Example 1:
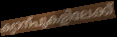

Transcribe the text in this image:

ക്യാന്പുകളിലേക്ക്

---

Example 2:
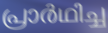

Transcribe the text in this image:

പ്രാർഥിച്ച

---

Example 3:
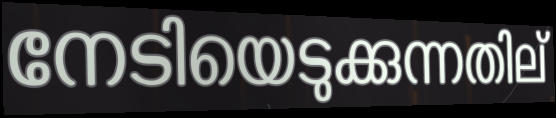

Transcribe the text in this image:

നേടിയെടുക്കുന്നതില്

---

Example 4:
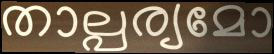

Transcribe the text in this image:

താല്പര്യമോ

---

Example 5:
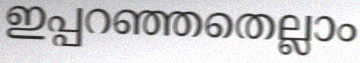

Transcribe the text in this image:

ഇപ്പറഞ്ഞതെല്ലാം